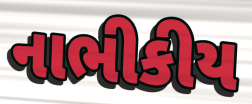
નાભીકીય